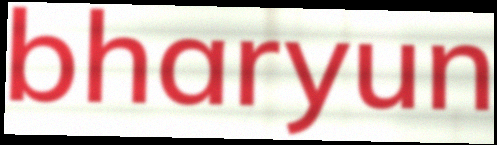
bharyun